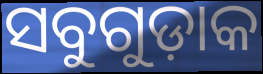
ସବୁଗୁଡ଼ାକ